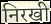
निरखी